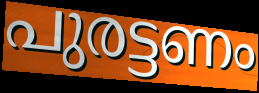
പുരട്ടണം